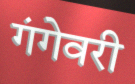
गंगेवरी